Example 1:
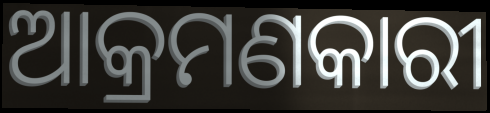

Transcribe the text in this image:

ଆକ୍ରମଣକାରୀ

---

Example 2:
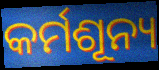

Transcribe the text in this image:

କର୍ମଶୂନ୍ୟ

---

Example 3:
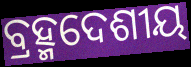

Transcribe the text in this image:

ବ୍ରହ୍ମଦେଶୀୟ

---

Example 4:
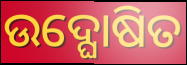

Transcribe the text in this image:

ଉଦ୍ଘୋଷିତ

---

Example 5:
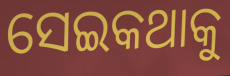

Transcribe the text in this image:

ସେଇକଥାକୁ